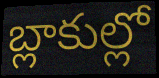
బ్లాకుల్లో